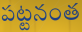
పట్టనంత